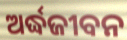
ଅର୍ଦ୍ଧଜୀବନ